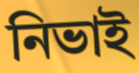
নিভাই